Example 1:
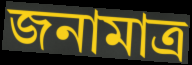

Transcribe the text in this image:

জনামাত্র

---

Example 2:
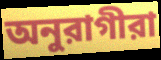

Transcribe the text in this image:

অনুরাগীরা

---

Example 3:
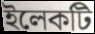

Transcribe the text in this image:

ইলেকটি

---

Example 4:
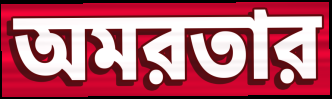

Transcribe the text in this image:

অমরতার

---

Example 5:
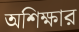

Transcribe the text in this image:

অশিক্ষার